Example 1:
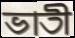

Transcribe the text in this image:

ভাতী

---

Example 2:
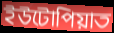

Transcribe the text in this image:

ইউটোপিয়াত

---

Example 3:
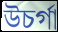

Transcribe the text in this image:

উচৰ্গা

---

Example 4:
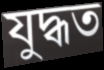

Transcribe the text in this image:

যুদ্ধত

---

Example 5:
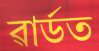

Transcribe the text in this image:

ৱাৰ্ডত